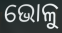
ଭୋଳୁ